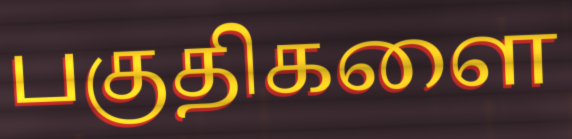
பகுதிகளை